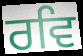
ਰਵਿ